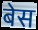
बेस